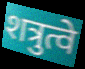
शत्रुत्वे